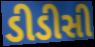
ડીડીસી